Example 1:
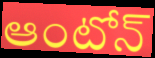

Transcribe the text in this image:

ఆంటోన్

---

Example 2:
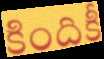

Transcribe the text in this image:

కిందికీ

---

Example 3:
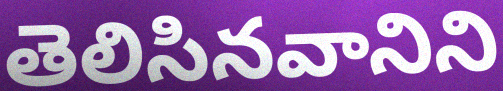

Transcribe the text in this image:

తెలిసినవానిని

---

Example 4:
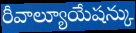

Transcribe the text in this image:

రీవాల్యూయేషన్కు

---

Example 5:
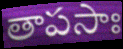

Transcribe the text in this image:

తాపసాః